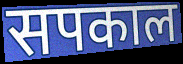
सपकाल